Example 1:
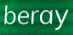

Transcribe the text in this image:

beray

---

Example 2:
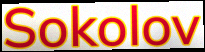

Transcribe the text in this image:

Sokolov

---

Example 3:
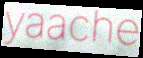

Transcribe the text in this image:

yaache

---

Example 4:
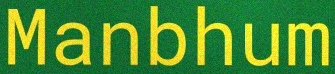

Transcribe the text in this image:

Manbhum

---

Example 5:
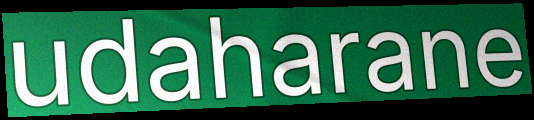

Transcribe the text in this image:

udaharane